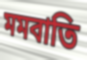
মমবাতি